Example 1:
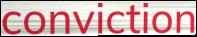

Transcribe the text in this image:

conviction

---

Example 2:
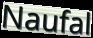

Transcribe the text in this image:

Naufal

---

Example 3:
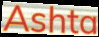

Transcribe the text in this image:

Ashta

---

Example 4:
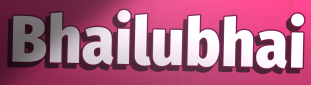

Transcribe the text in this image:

Bhailubhai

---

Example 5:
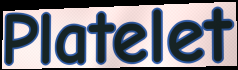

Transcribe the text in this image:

Platelet